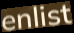
enlist